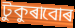
টুকুৰাবোৰ